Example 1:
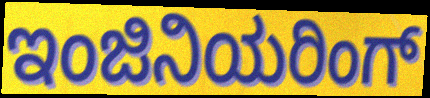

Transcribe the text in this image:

ಇಂಜಿನಿಯರಿಂಗ್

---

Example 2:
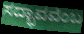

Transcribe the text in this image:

ಸದ್ಭಾವವೆಂಬ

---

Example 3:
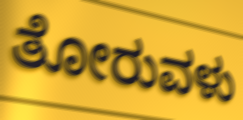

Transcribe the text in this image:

ತೋರುವಳು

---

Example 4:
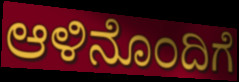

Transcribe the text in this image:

ಆಳಿನೊಂದಿಗೆ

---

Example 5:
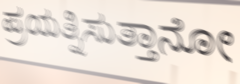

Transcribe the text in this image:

ಪ್ರಯತ್ನಿಸುತ್ತಾನೋ